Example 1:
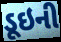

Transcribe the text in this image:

ડૂઇની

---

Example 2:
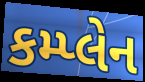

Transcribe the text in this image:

કમ્પ્લેન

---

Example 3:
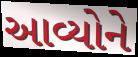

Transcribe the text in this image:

આવ્યોને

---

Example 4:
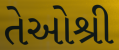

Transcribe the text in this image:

તેઓશ્રી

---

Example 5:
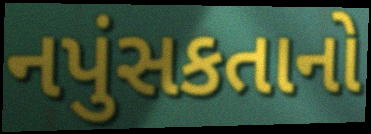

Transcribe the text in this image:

નપુંસકતાનો